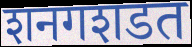
शनगशडत